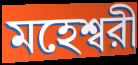
মহেশ্বরী